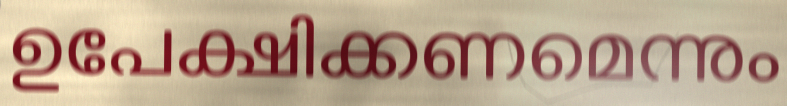
ഉപേക്ഷിക്കണമെന്നും